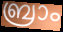
ബ്രാം